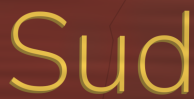
Sud